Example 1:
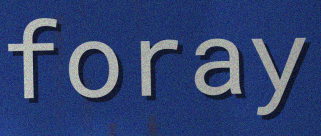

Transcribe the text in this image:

foray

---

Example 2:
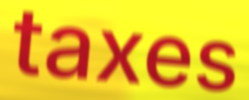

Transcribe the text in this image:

taxes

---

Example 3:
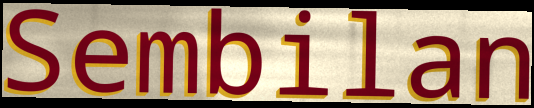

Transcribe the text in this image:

Sembilan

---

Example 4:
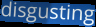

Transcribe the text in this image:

disgusting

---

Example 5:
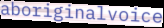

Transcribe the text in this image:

aboriginalvoice